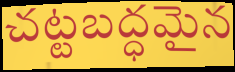
చట్టబద్ధమైన